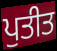
ਪੁਤੀਤ